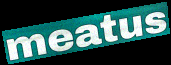
meatus